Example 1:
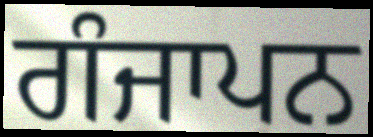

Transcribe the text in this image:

ਗੰਜਾਪਨ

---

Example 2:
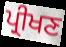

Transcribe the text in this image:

ਪ੍ਰੀਖਣ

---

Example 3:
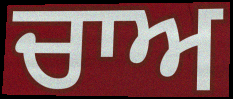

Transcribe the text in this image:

ਚਾਅ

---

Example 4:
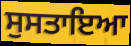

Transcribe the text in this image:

ਸੁਸਤਾਇਆ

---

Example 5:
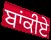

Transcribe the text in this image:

ਬਾਂਕੀਏ